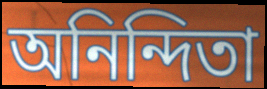
অনিন্দিতা